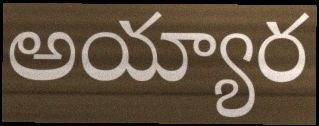
అయ్యార